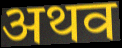
अथव